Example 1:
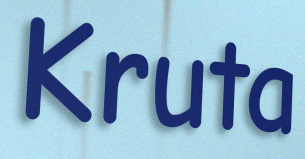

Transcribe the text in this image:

Kruta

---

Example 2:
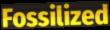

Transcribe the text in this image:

Fossilized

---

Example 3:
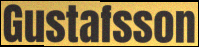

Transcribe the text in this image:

Gustafsson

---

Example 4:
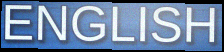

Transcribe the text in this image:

ENGLISH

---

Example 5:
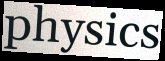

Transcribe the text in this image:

physics